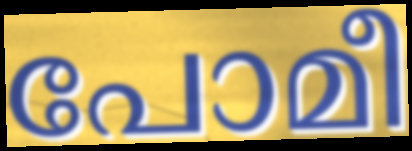
പോമീ